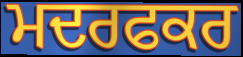
ਮਦਰਫਕਰ